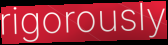
rigorously